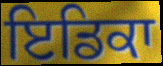
ਇਡਿਕਾ